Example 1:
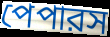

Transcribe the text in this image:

পেপারস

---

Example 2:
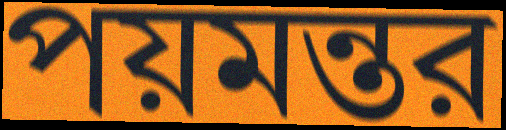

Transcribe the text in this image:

পয়মন্তর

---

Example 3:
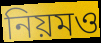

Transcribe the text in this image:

নিয়মও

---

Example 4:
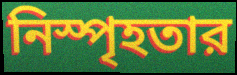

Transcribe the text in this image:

নিস্পৃহতার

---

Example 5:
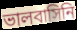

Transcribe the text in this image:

ভালবাসিনি